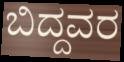
ಬಿದ್ದವರ